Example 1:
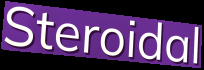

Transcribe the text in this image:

Steroidal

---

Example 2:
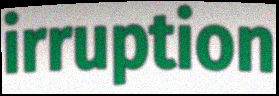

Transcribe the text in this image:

irruption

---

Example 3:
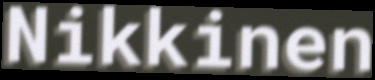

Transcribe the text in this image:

Nikkinen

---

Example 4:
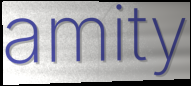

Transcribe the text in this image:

amity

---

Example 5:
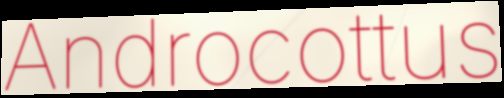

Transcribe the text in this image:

Androcottus